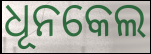
ଧୂନକେଲ